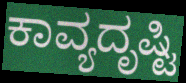
ಕಾವ್ಯದೃಷ್ಟಿ